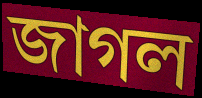
জাগল